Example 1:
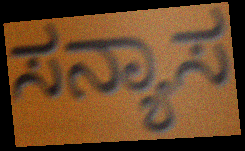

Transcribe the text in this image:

ಸನ್ಯಾಸ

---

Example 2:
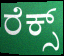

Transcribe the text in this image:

ರೆಕ್ಸ್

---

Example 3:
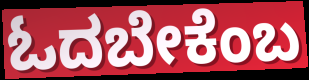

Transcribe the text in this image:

ಓದಬೇಕೆಂಬ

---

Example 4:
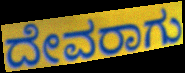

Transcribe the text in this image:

ದೇವರಾಗು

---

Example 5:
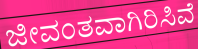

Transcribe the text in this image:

ಜೀವಂತವಾಗಿರಿಸಿವೆ